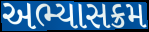
અભ્યાસક્રમ